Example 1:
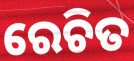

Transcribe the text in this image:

ରେଚିତ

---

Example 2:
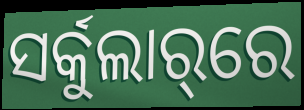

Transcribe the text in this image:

ସର୍କୁଲାର୍‌ରେ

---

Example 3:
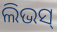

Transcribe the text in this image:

ଲିଭସ୍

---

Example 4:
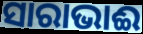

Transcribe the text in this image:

ସାରାଭାଈ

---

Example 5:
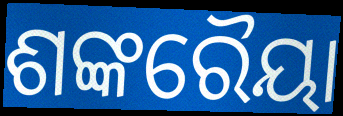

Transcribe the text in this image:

ଶଙ୍କରୈୟା